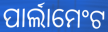
ପାର୍ଲାମେଂଟ